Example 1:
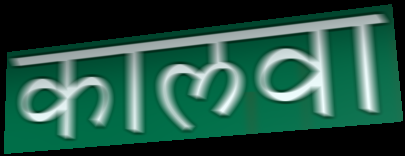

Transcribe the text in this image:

कालवा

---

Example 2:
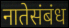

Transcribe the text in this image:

नातेसंबंध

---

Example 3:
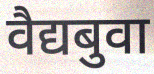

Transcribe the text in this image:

वैद्यबुवा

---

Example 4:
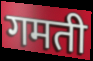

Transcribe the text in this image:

गमती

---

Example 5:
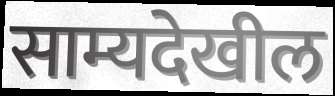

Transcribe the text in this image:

साम्यदेखील